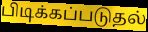
பிடிக்கப்படுதல்